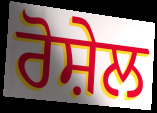
ਰੋਸ਼ੇਲ